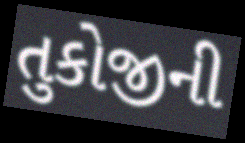
તુકોજીની